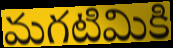
మగటిమికి